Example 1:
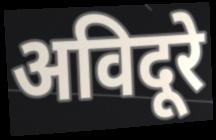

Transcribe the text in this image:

अविदूरे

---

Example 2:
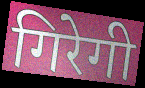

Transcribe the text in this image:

गिरेगी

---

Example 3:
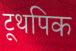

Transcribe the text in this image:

टूथपिक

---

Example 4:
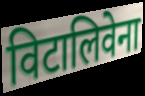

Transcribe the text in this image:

विटालिवेना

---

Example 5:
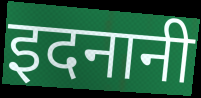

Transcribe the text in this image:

इदनानी